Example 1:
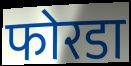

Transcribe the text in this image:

फोरडा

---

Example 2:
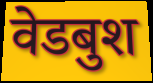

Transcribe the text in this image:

वेडबुश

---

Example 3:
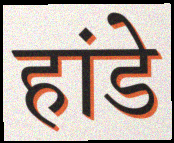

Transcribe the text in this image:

हांडे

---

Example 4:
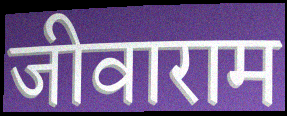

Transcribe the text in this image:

जीवाराम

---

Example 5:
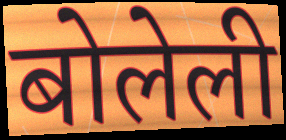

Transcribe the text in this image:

बोलेली